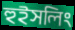
হুইসলিং